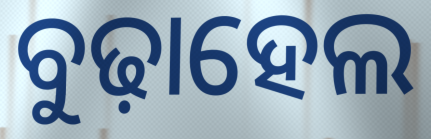
ବୁଢ଼ାହେଲ